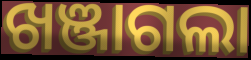
ଖଞ୍ଜାଗଲା